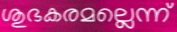
ശുഭകരമല്ലെന്ന്